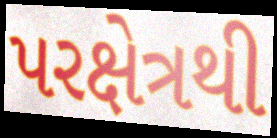
પરક્ષેત્રથી